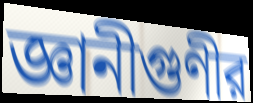
জ্ঞানীগুণীর